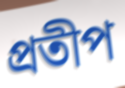
প্রতীপ